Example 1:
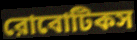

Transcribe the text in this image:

রোবোটিকস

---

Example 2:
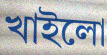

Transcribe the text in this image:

খাইলো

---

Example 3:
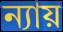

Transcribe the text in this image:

ন্যায়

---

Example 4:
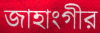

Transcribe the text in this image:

জাহাংগীর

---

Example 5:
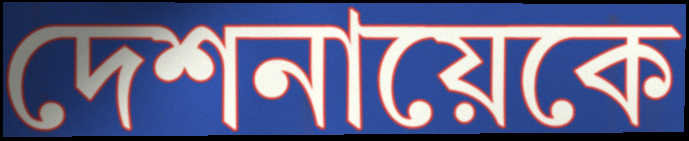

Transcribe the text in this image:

দেশনায়েকে